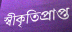
স্বীকৃতিপ্রাপ্ত